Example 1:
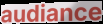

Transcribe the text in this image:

audiance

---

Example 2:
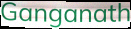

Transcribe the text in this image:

Ganganath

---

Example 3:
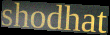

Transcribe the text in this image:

shodhat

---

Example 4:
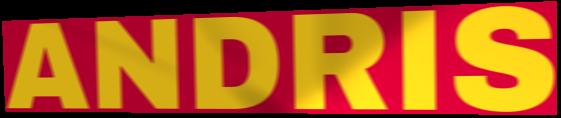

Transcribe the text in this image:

ANDRIS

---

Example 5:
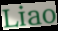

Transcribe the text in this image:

Liao